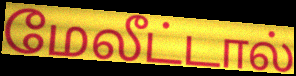
மேலீட்டால்